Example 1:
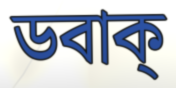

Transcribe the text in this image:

ডবাক্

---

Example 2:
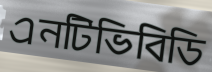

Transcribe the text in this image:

এনটিভিবিডি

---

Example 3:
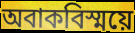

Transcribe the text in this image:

অবাকবিস্ময়ে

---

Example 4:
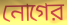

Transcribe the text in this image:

নোগের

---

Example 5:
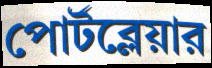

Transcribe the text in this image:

পোর্টব্লেয়ার